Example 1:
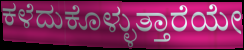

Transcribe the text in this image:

ಕಳೆದುಕೊಳ್ಳುತ್ತಾರೆಯೇ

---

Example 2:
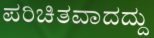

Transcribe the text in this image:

ಪರಿಚಿತವಾದದ್ದು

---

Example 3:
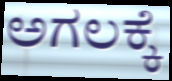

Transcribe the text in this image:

ಅಗಲಕ್ಕೆ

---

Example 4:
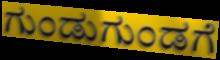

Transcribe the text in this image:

ಗುಂಡುಗುಂಡಗೆ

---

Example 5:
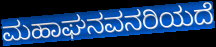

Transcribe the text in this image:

ಮಹಾಘನವನರಿಯದೆ